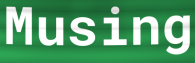
Musing